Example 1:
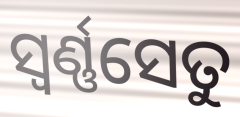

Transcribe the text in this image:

ସ୍ଵର୍ଣ୍ଣସେତୁ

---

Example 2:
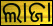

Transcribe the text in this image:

ଲାଜା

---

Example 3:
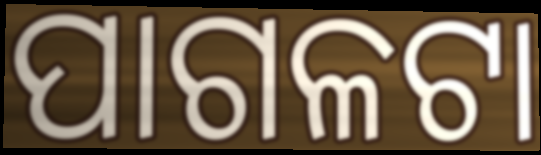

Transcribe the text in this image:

ପାଗଳଟା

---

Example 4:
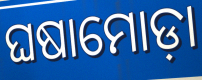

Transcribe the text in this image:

ଘଷାମୋଡ଼ା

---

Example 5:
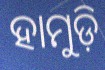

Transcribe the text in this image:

ହାମୁଡ଼ି